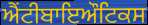
ਐਂਟੀਬਾਇਔਟਿਕਸ